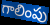
గాలింపు